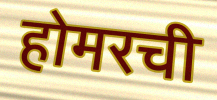
होमरची